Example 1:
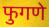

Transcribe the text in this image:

फुगणे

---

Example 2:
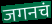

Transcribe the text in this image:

जगनचं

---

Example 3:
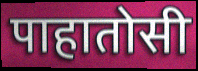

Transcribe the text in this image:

पाहातोसी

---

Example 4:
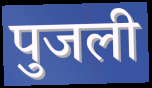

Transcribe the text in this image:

पुजली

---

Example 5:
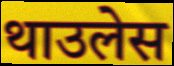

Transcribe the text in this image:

थाउलेस